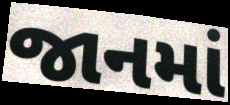
જાનમાં